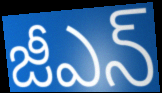
జీఎన్